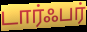
டார்ஃபர்